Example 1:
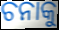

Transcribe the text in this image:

ଚନାକୁ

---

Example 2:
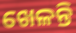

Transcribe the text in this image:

ଖେଳନ୍ତି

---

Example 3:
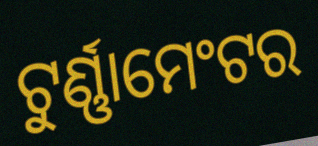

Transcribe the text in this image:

ଟୁର୍ଣ୍ଣାମେଂଟର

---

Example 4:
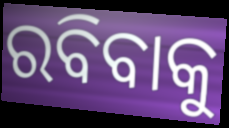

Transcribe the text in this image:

ରବିବାକୁ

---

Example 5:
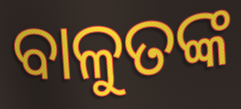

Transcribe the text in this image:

ବାଳୁତଙ୍କ